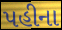
પહીના